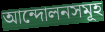
আন্দোলনসমূহ